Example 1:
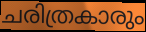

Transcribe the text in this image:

ചരിത്രകാരും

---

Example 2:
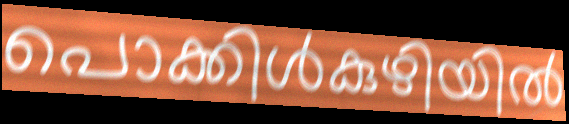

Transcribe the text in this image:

പൊക്കിൾകുഴിയിൽ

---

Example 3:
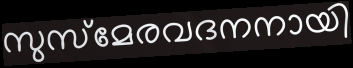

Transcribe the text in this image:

സുസ്മേരവദനനായി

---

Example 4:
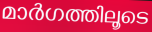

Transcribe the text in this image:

മാർഗത്തിലൂടെ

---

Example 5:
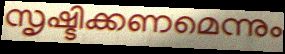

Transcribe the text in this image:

സൃഷ്ടിക്കണമെന്നും